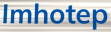
Imhotep